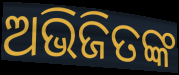
ଅଭିଜିତଙ୍କ